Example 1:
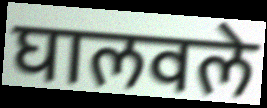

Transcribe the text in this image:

घालवले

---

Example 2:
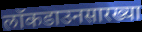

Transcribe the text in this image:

लॉकडाउनसारख्या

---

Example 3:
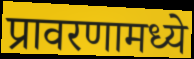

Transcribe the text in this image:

प्रावरणामध्ये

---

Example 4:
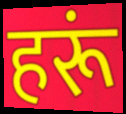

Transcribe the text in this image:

हरूं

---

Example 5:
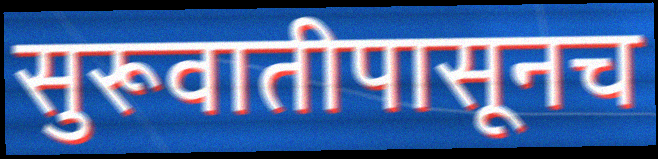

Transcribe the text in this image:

सुरूवातीपासूनच